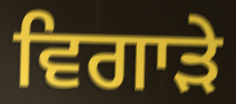
ਵਿਗਾੜੇ